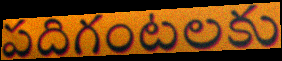
పదిగంటలకు